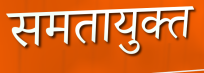
समतायुक्त